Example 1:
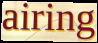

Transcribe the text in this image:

airing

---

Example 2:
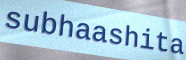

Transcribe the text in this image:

subhaashita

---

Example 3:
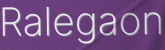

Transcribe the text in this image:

Ralegaon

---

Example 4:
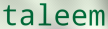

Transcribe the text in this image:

taleem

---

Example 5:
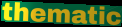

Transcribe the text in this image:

thematic